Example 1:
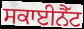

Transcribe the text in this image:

ਸਕਾਈਨੈੱਟ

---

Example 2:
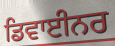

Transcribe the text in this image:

ਡਿਵਾਈਨਰ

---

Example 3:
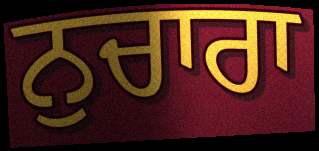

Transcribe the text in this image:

ਨੁਚਾਰਾ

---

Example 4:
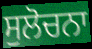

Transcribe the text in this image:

ਸੁਲੋਚਨਾ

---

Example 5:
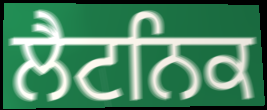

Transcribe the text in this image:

ਲੈਟਨਿਕ